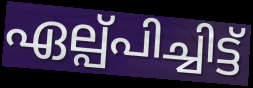
ഏല്പ്പിച്ചിട്ട്